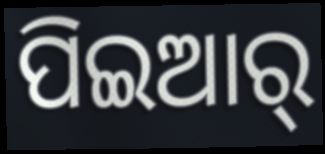
ପିଇଆର୍